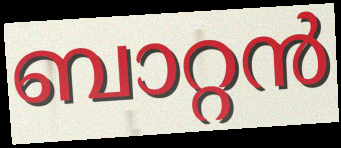
ബാറ്റൻ